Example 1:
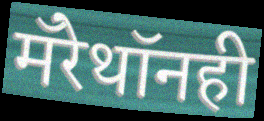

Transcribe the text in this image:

मॅरेथॉनही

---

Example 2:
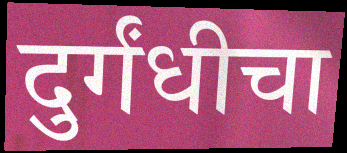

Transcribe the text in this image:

दुर्गंधीचा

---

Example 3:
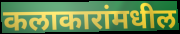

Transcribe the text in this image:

कलाकारांमधील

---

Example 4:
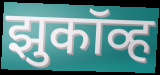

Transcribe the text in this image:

झुकॉव्ह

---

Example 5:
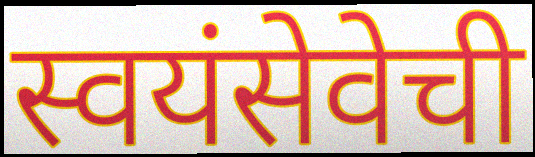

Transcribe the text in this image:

स्वयंसेवेची